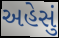
અહેસું